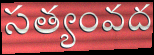
సత్యంవద